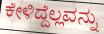
ಕೇಳಿದ್ದೆಲ್ಲವನ್ನು